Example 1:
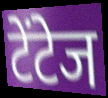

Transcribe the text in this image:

टेंटेज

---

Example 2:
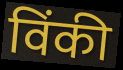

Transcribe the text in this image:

विंकी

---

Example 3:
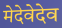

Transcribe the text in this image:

मेदेवेदेव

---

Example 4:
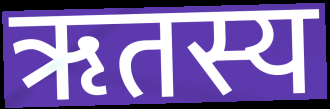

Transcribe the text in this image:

ॠतस्य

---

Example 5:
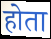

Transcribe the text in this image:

होता